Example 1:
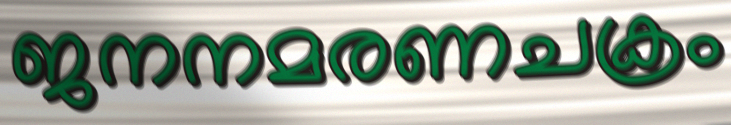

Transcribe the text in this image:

ജനനമരണചക്രം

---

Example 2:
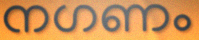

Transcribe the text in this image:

നഗണം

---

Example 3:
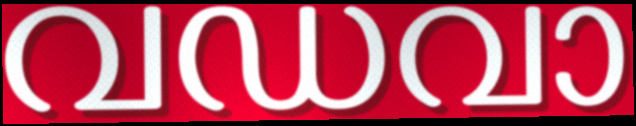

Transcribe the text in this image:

വഡവാ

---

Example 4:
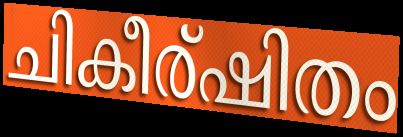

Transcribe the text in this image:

ചികീര്ഷിതം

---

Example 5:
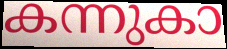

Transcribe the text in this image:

കന്നുകാ